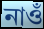
নাওঁ